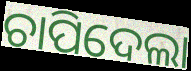
ଚାପିଦେଲା